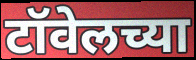
टॉवेलच्या